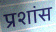
प्रशांस